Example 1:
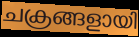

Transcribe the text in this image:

ചക്രങ്ങളായി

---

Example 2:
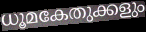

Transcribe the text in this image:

ധൂമകേതുക്കളും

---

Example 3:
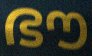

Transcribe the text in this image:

ഭൗ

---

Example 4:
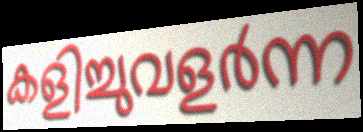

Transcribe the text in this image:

കളിച്ചുവളർന്ന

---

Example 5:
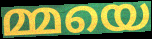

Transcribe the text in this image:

മ്മയെ